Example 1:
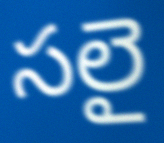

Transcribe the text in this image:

సలై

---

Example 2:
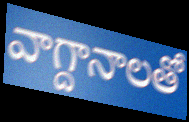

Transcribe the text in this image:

వాగ్దానాలతో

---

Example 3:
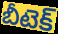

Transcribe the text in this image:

బీటెక్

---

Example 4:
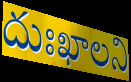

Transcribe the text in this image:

దుఃఖాలని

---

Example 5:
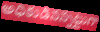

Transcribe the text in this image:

అధికుడినన్నట్టుగా